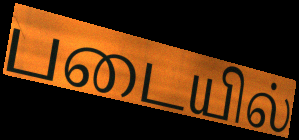
படையில்